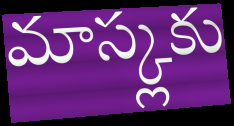
మాస్క్లకు